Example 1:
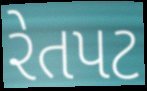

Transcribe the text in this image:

રેતપટ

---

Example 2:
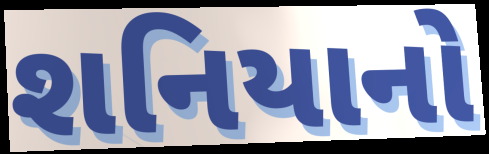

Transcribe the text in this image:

શનિયાનો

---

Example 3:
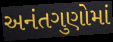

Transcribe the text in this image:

અનંતગુણોમાં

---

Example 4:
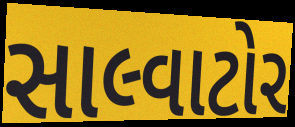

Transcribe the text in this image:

સાલ્વાટોર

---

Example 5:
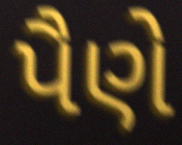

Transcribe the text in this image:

પૈણે